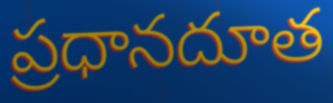
ప్రధానదూత